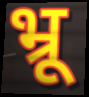
भ्रू